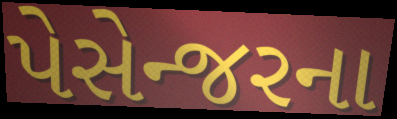
પેસેન્જરના